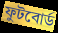
ফুটবোর্ড